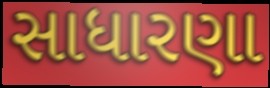
સાધારણા